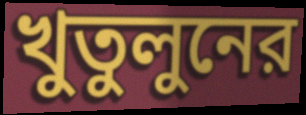
খুতুলুনের